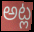
అట్ల